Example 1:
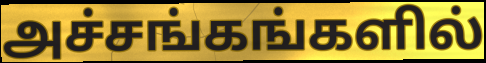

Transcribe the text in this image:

அச்சங்கங்களில்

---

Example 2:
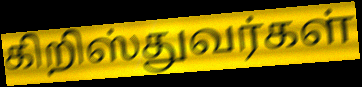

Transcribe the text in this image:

கிறிஸ்துவர்கள்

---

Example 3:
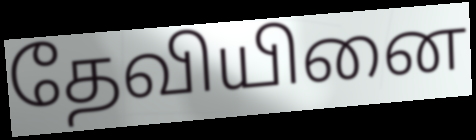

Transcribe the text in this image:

தேவியினை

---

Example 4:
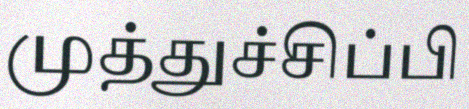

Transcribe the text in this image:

முத்துச்சிப்பி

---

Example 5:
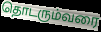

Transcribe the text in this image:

தொடரும்வரை